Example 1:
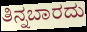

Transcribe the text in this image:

ತಿನ್ನಬಾರದು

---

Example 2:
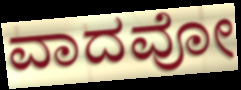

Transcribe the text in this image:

ವಾದವೋ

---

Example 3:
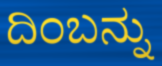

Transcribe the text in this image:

ದಿಂಬನ್ನು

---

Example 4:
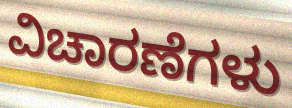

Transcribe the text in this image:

ವಿಚಾರಣೆಗಳು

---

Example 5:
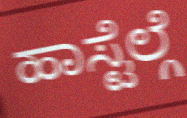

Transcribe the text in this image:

ಹಾಸ್ಟೆಲ್ಗೆ